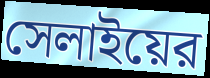
সেলাইয়ের